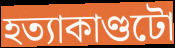
হত্যাকাণ্ডটো